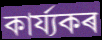
কাৰ্য্যকৰ